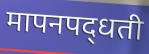
मापनपद्धती